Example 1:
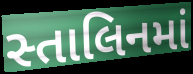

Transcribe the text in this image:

સ્તાલિનમાં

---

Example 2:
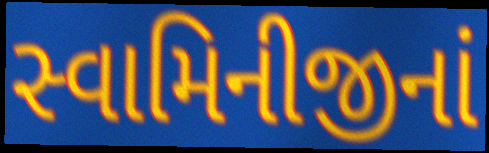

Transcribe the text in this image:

સ્વામિનીજીનાં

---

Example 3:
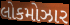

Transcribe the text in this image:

લોકમોઝાર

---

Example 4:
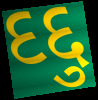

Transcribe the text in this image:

દદ્દુ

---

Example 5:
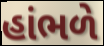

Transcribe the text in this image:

હાંભળે